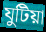
যুটিয়া